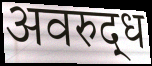
अवरुद्ध